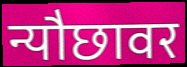
न्यौछावर